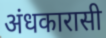
अंधकारासी